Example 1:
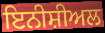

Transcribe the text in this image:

ਇਨੀਸ਼ੀਅਲ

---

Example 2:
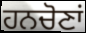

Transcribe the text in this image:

ਹਨਚੋਣਾਂ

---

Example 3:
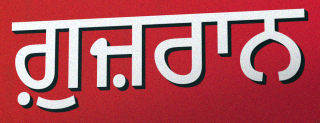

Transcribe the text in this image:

ਗ਼ੁਜ਼ਰਾਨ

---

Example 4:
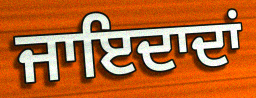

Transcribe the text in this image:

ਜਾਇਦਾਦਾਂ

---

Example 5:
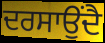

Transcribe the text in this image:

ਦਰਸਾਉਂਦੈ